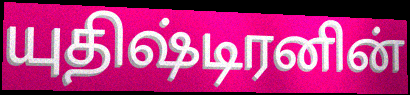
யுதிஷ்டிரனின்